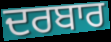
ਦਰਬਾਰ